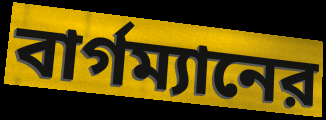
বার্গম্যানের